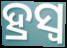
ହ୍ରସ୍ୱ